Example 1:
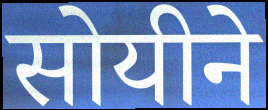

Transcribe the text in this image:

सोयीने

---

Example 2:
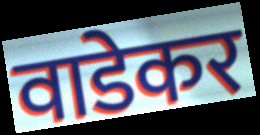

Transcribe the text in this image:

वाडेकर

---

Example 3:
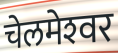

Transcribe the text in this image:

चेलमेश्‍वर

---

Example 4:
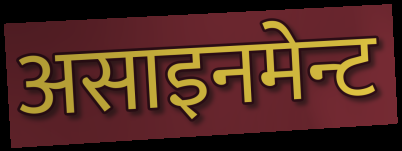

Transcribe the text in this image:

असाइनमेन्ट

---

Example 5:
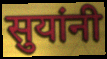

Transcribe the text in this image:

सुयांनी